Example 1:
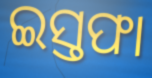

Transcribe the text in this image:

ଇସ୍ତଫା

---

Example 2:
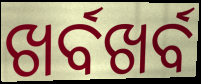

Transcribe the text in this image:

ଖର୍ବଖର୍ବ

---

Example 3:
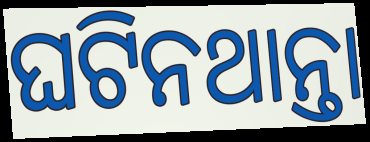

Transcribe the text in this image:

ଘଟିନଥାନ୍ତା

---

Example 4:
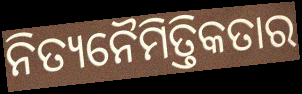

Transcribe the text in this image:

ନିତ୍ୟନୈମିତ୍ତିକତାର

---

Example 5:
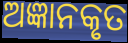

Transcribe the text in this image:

ଅଜ୍ଞାନକୃତ